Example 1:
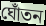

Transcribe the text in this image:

ঘোঁতন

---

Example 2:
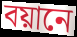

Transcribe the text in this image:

বয়ানে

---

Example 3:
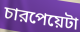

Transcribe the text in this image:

চারপেয়েটা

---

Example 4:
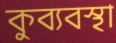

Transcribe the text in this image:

কুব্যবস্থা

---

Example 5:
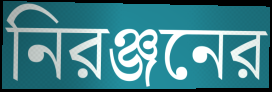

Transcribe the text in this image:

নিরঞ্জনের